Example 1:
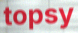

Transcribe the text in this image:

topsy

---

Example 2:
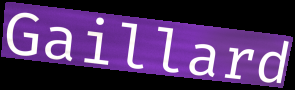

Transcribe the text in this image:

Gaillard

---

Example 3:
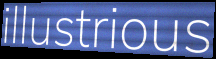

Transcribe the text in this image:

illustrious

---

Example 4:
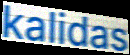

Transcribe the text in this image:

kalidas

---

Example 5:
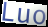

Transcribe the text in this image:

Luo